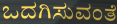
ಒದಗಿಸುವಂತೆ